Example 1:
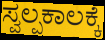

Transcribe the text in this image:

ಸ್ವಲ್ಪಕಾಲಕ್ಕೆ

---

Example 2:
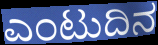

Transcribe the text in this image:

ಎಂಟುದಿನ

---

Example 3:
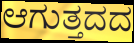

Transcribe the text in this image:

ಆಗುತ್ತದದ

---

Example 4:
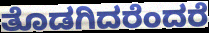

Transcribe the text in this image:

ತೊಡಗಿದರೆಂದರೆ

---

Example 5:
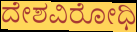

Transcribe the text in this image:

ದೇಶವಿರೋಧಿ